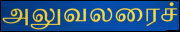
அலுவலரைச்